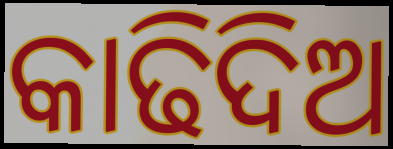
କାଢିଦିଅ